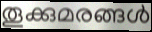
തൂക്കുമരങ്ങൾ